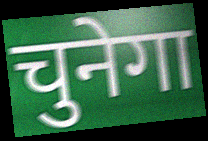
चुनेगा